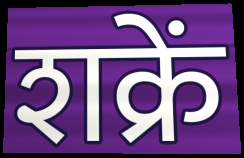
शक्रें